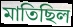
মাতিছিল